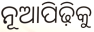
ନୂଆପିଢ଼ିକୁ